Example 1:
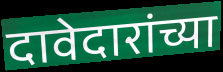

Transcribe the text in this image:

दावेदारांच्या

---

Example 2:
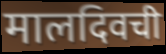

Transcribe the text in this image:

मालदिवची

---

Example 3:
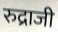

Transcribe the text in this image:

रुद्राजी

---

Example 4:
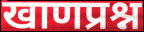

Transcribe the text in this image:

खाणप्रश्न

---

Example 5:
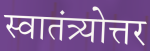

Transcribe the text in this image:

स्वातंत्र्योत्तर